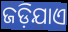
ଜଡ଼ିଯାଏ